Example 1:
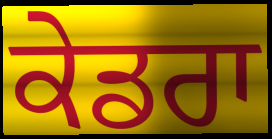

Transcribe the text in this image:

ਕੇਡਰਾ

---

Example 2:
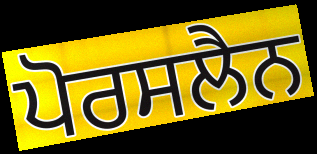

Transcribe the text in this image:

ਪੋਰਸਲੈਨ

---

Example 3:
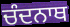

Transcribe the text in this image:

ਚੰਦਨਾਥ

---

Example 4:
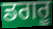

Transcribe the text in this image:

ਡਗਰੂ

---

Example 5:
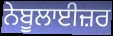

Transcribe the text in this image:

ਨੇਬੂਲਾਈਜ਼ਰ